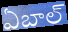
ఏబాల్